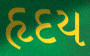
હૃદય